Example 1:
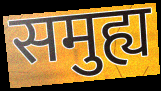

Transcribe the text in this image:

समुह्य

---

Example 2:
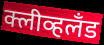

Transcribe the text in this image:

क्लीव्हलँड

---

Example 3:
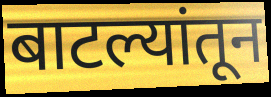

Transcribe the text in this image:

बाटल्यांतून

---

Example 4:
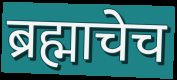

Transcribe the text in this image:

ब्रह्माचेच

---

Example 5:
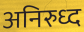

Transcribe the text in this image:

अनिरुध्द